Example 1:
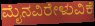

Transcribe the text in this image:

ಮೈನವಿರೇಳುವಿಕೆ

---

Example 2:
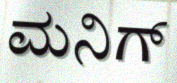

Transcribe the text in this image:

ಮನಿಗ್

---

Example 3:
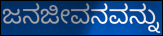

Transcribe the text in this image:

ಜನಜೀವನವನ್ನು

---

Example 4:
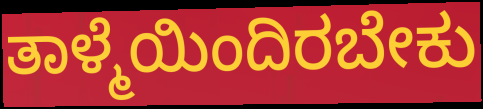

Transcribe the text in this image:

ತಾಳ್ಮೆಯಿಂದಿರಬೇಕು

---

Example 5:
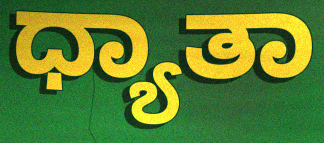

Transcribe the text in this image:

ಧ್ಯಾತಾ